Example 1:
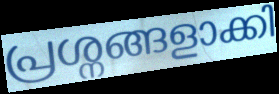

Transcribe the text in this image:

പ്രശ്നങ്ങളാക്കി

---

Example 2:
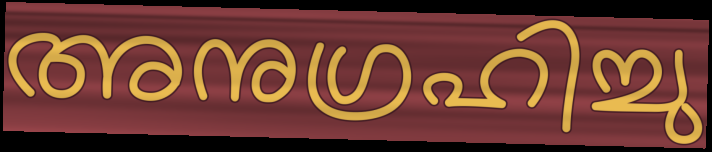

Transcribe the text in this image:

അനുഗ്രഹിച്ചു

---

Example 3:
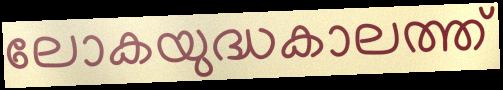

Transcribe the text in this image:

ലോകയുദ്ധകാലത്ത്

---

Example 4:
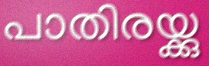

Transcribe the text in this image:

പാതിരയ്ക്കു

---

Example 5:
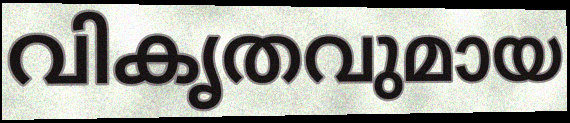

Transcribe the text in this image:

വികൃതവുമായ